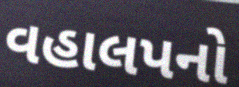
વહાલપનો